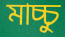
মাচ্চু